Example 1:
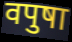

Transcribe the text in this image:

वपुषा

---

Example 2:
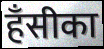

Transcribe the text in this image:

हँसीका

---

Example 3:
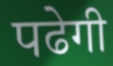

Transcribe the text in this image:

पढेगी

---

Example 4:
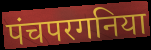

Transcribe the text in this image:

पंचपरगनिया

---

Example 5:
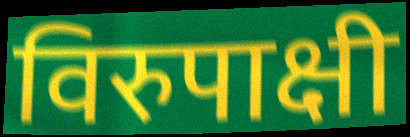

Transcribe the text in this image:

विरुपाक्षी